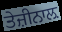
ਤੇਜ਼ੀਨਾਲ਼